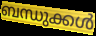
ബന്ധുക്കൾ